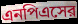
এনপিএসের